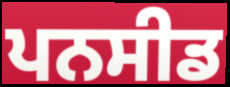
ਪਨਸੀਡ